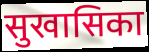
सुखासिका